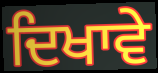
ਦਿਖਾਵੇ